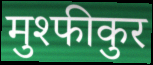
मुश्फीकुर